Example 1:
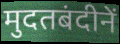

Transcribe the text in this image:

मुदतबंदीनें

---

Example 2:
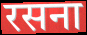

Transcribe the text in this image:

रसना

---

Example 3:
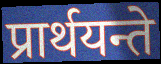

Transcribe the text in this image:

प्रार्थयन्ते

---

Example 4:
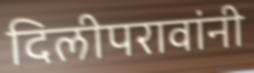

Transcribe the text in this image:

दिलीपरावांनी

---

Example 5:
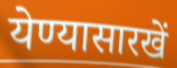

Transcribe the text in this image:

येण्यासारखें